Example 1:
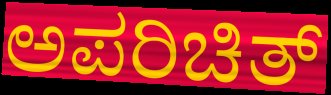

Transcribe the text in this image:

ಅಪರಿಚಿತ್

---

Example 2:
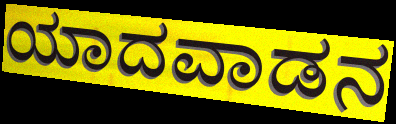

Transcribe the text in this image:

ಯಾದವಾಡನ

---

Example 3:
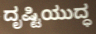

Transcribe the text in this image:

ದೃಷ್ಟಿಯುದ್ಧ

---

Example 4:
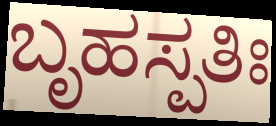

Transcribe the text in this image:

ಬೃಹಸ್ಪತಿಃ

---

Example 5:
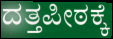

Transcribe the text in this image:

ದತ್ತಪೀಠಕ್ಕೆ